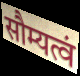
सौम्यत्वं